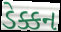
ડેક્કન